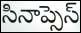
సినాప్సెస్